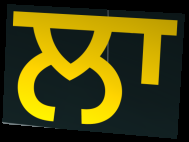
ਲਾ